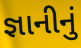
જ્ઞાનીનું